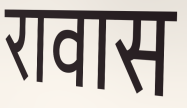
रावास